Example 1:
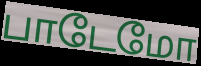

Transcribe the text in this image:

பாடேமோ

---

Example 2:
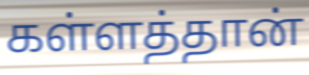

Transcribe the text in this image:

கள்ளத்தான்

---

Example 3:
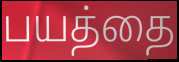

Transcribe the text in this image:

பயத்தை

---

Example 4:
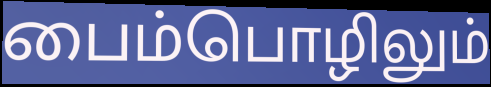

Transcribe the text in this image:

பைம்பொழிலும்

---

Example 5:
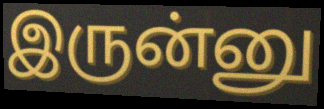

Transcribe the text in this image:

இருன்னு